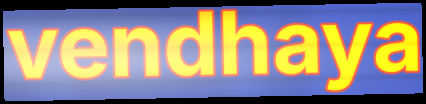
vendhaya